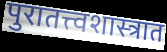
पुरातत्त्वशास्त्रात